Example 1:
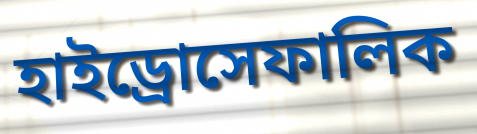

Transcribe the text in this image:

হাইড্রোসেফালিক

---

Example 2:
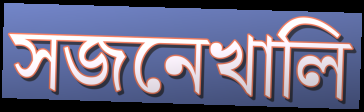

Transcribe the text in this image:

সজনেখালি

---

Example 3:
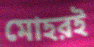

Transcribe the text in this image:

মোহরই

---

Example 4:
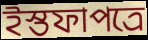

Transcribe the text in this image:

ইস্তফাপত্রে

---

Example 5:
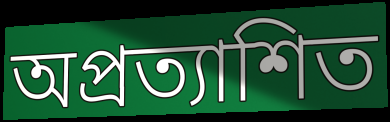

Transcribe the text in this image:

অপ্রত্যাশিত